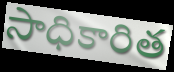
సాధికారిత